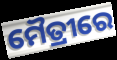
ମୈତ୍ରୀରେ